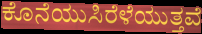
ಕೊನೆಯುಸಿರೆಳೆಯುತ್ತವೆ